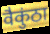
वैकुंठा